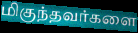
மிகுந்தவர்களை